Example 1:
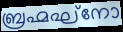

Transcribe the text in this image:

ബ്രഹ്മഘ്നോ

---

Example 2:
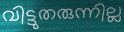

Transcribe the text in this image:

വിട്ടുതരുന്നില്ല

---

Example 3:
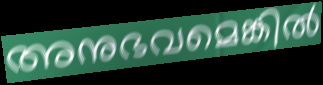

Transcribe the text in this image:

അനുഭവമെങ്കിൽ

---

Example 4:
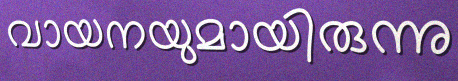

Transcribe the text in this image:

വായനയുമായിരുന്നു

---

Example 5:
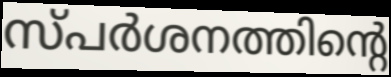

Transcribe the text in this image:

സ്പർശനത്തിന്റെ